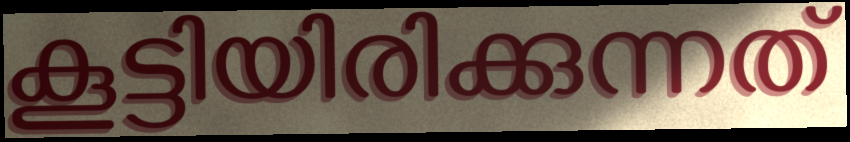
കൂട്ടിയിരിക്കുന്നത്